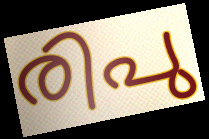
രിപു